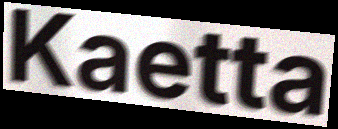
Kaetta